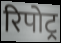
रिपोट्र